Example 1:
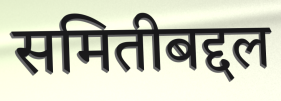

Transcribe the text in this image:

समितीबद्दल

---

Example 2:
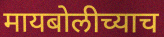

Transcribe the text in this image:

मायबोलीच्याच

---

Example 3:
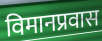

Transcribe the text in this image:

विमानप्रवास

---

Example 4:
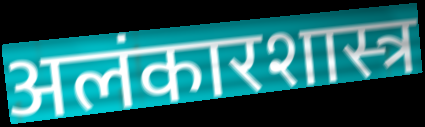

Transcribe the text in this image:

अलंकारशास्त्र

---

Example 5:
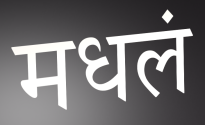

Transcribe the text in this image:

मधलं